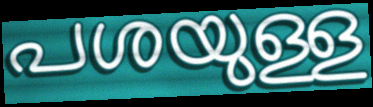
പശയുള്ള